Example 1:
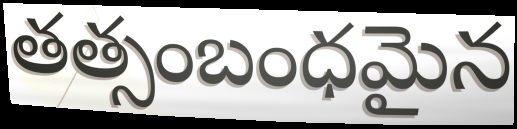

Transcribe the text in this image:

తత్సంబంధమైన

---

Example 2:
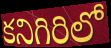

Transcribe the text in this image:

కనిగిరిలో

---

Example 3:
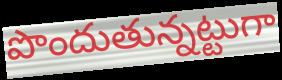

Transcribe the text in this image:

పొందుతున్నట్టుగా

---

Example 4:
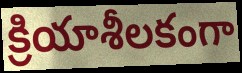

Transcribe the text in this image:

క్రియాశీలకంగా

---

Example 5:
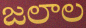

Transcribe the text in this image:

జలాల